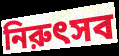
নিরুৎসব